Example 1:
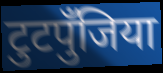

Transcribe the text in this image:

टुटपुँजिया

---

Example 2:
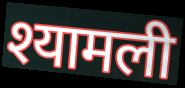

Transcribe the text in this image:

श्यामली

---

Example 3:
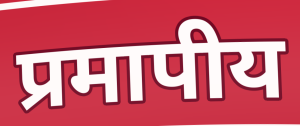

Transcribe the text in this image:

प्रमापीय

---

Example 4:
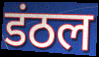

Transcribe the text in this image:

डंठल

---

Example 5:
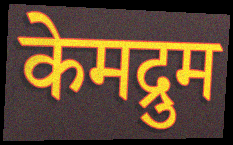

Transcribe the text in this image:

केमद्रुम